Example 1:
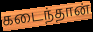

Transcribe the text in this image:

கடைந்தான்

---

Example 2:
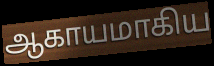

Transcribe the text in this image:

ஆகாயமாகிய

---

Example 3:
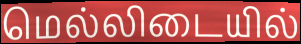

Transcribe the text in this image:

மெல்லிடையில்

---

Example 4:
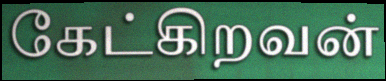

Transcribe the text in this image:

கேட்கிறவன்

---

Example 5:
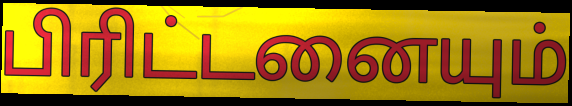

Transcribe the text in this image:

பிரிட்டனையும்